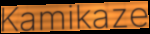
Kamikaze